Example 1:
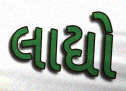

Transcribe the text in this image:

લાદ્યો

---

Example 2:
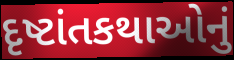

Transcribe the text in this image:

દૃષ્ટાંતકથાઓનું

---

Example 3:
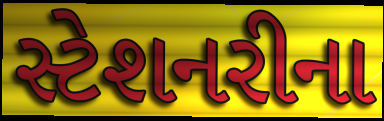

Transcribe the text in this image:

સ્ટેશનરીના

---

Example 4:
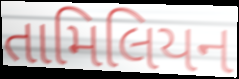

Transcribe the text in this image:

તામિલિયન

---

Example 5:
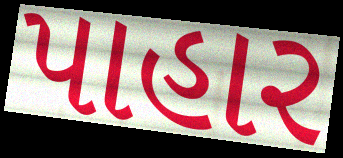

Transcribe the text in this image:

પાહાર